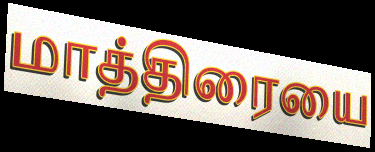
மாத்திரையை